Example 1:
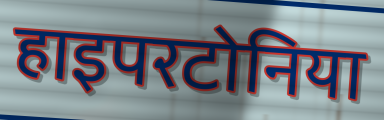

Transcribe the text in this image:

हाइपरटोनिया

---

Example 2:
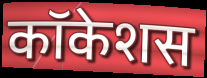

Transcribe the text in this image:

कॉकेशस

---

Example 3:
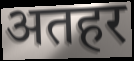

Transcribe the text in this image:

अतहर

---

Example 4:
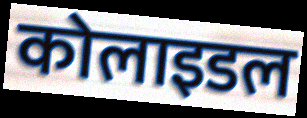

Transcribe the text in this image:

कोलाइडल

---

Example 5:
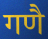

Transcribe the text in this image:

गणै